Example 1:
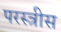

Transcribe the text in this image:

परस्त्रीस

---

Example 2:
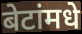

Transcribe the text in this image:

बेटांमधे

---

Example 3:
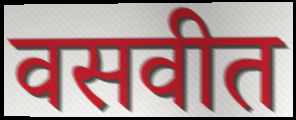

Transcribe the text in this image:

वसवीत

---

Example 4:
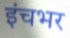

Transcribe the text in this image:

इंचभर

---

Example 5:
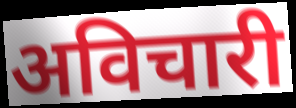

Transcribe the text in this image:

अविचारी